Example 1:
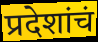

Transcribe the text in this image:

प्रदेशांचं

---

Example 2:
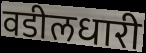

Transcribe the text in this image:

वडीलधारी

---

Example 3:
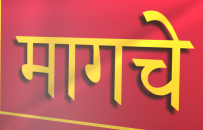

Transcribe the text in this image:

मागचे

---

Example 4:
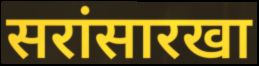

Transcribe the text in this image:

सरांसारखा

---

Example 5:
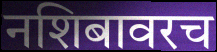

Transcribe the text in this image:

नशिबावरच